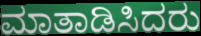
ಮಾತಾಡಿಸಿದರು